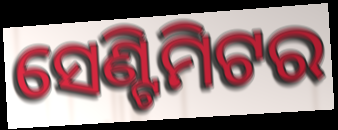
ସେଣ୍ଟିମିଟର